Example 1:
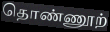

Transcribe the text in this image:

தொண்ணூற்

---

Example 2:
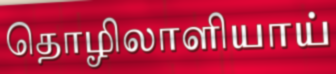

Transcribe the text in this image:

தொழிலாளியாய்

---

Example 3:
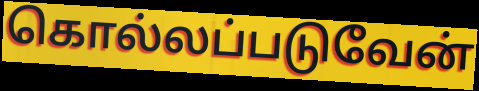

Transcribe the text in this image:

கொல்லப்படுவேன்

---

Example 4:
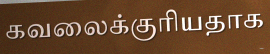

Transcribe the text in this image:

கவலைக்குரியதாக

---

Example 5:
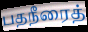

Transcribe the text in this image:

பதநீரைத்